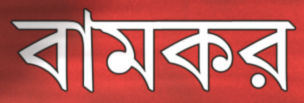
বামকর